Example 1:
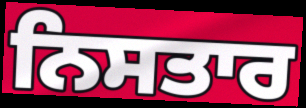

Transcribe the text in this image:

ਨਿਸਤਾਰ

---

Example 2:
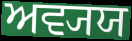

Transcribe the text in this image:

ਅਵ੍ਯਯ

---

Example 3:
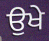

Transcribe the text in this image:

ਉਖੇ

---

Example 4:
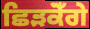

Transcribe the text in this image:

ਛਿੜਕੋਁਗੇ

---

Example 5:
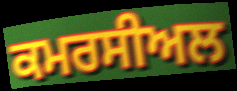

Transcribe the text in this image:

ਕਮਰਸੀਅਲ